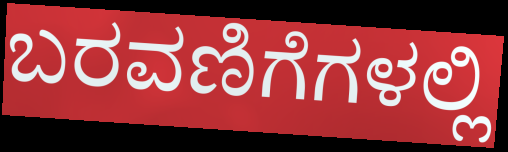
ಬರವಣಿಗೆಗಳಲ್ಲಿ